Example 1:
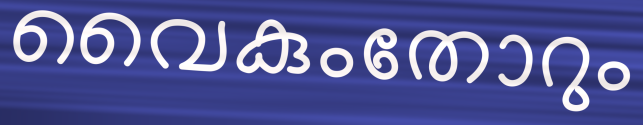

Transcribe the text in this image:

വൈകുംതോറും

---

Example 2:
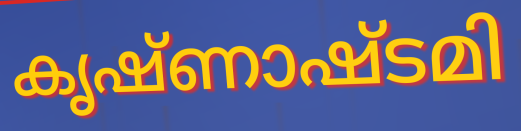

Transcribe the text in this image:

കൃഷ്ണാഷ്ടമി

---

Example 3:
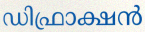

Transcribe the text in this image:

ഡിഫ്രാക്ഷൻ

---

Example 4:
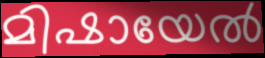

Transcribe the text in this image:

മിഷായേൽ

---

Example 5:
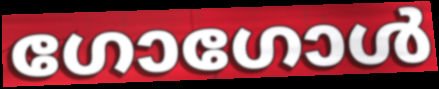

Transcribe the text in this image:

ഗോഗോൾ